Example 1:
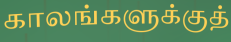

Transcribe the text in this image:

காலங்களுக்குத்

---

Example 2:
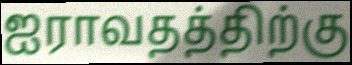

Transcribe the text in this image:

ஐராவதத்திற்கு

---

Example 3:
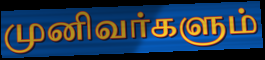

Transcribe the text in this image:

முனிவர்களும்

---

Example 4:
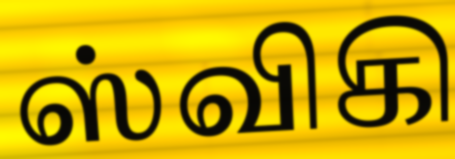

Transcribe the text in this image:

ஸ்விகி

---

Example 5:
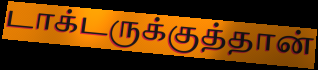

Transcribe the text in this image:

டாக்டருக்குத்தான்